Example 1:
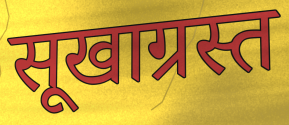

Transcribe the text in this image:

सूखाग्रस्त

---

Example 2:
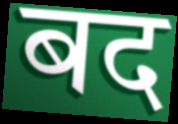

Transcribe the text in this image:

बद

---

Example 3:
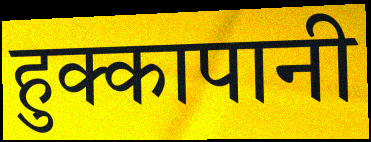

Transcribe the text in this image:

हुक्कापानी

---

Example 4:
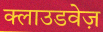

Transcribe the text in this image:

क्लाउडवेज़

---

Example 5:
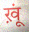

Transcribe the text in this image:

ख़ूं